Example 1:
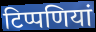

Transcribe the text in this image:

टिप्‍पणियां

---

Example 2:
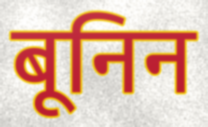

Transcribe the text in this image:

बूनिन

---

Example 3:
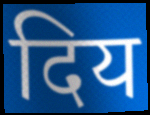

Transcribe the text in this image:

दिय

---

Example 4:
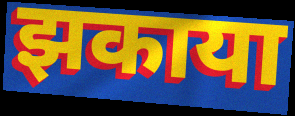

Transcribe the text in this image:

झकाया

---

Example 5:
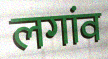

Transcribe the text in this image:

लगांव